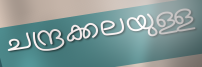
ചന്ദ്രക്കലയുള്ള